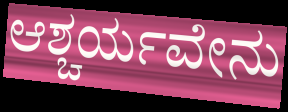
ಆಶ್ಚರ್ಯವೇನು